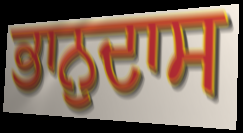
ਭਾਨੁਦਾਸ